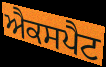
ਐਕਸਪੈਟ